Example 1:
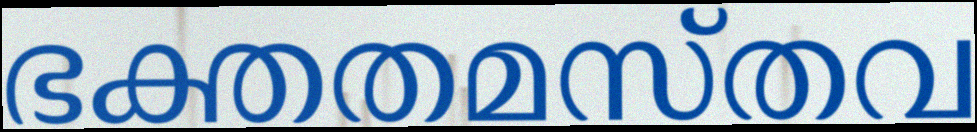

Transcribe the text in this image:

ഭക്തതമസ്തവ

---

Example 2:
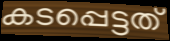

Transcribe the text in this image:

കടപ്പെട്ടത്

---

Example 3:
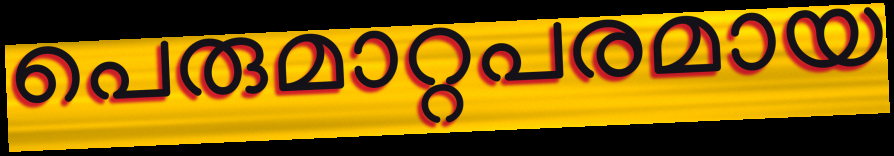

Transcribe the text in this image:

പെരുമാറ്റപരമായ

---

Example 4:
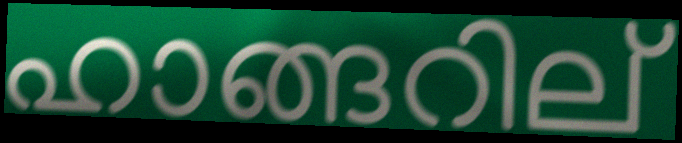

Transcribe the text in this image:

ഹാങ്ങറില്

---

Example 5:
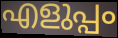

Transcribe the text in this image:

എളുപ്പം